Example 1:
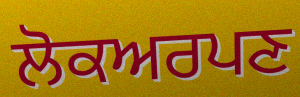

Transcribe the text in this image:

ਲੋਕਅਰਪਣ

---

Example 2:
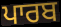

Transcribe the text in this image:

ਪਾਰਬ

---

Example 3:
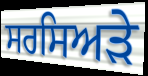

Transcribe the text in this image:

ਸਰਸਿਅੜੇ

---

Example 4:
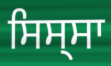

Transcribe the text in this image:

ਸਿਸ੍ਸਾ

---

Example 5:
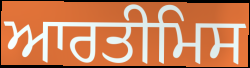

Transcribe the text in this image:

ਆਰਤੀਮਿਸ